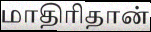
மாதிரிதான்